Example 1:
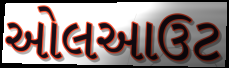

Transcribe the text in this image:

ઓલઆઉટ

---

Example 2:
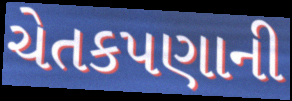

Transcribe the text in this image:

ચેતકપણાની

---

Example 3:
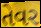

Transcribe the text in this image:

તેવર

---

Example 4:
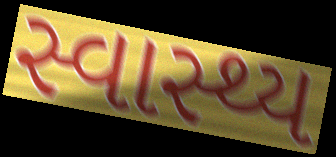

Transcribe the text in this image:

સ્વાસ્થ્ય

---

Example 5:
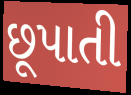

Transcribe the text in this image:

છૂપાતી